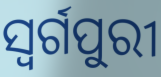
ସ୍ଵର୍ଗପୁରୀ